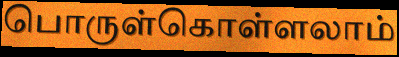
பொருள்கொள்ளலாம்